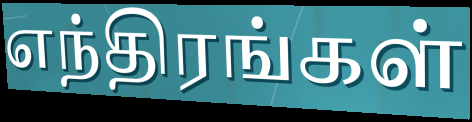
எந்திரங்கள்